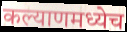
कल्याणमध्येच